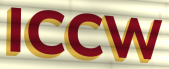
ICCW